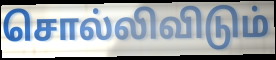
சொல்லிவிடும்